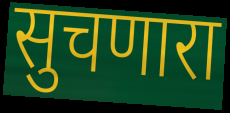
सुचणारा